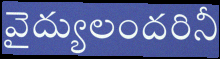
వైద్యులందరినీ